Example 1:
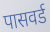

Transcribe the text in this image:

पासवर्ड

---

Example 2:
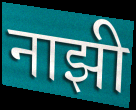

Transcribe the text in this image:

नाझी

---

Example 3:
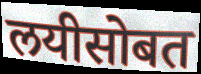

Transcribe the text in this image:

लयीसोबत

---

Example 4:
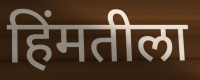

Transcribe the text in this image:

हिंमतीला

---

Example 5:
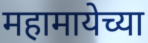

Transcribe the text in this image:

महामायेच्या